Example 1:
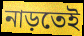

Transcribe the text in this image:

নাড়তেই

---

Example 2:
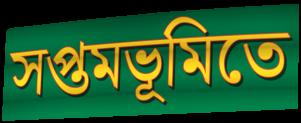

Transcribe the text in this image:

সপ্তমভূমিতে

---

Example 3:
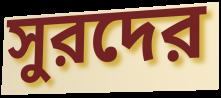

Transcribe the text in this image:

সুরদের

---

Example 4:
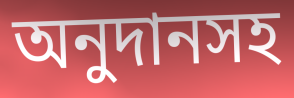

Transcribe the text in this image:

অনুদানসহ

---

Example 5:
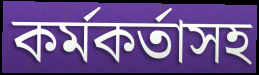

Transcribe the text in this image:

কর্মকর্তাসহ